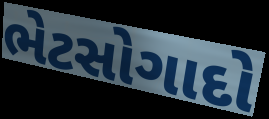
ભેટસોગાદો